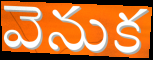
వెనుక